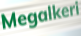
Megalkeri